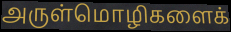
அருள்மொழிகளைக்